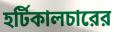
হর্টিকালচারের